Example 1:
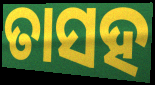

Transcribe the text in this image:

ତାସହ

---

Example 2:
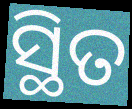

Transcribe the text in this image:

ସ୍ଥିତ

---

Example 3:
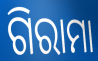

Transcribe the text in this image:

ଗିରାମା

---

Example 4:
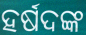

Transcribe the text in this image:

ହର୍ଷଦଙ୍କ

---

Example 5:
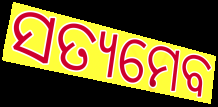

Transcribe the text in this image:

ସତ୍ୟମେବ